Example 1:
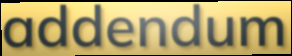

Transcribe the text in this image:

addendum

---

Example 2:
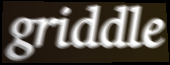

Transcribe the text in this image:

griddle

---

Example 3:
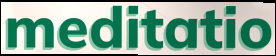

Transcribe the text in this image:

meditatio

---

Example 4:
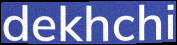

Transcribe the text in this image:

dekhchi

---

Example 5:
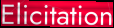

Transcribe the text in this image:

Elicitation